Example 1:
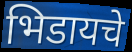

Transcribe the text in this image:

भिडायचे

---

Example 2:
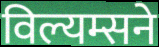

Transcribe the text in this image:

विल्यम्सने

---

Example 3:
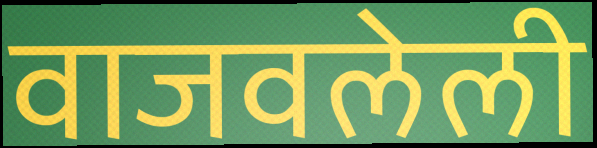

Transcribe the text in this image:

वाजवलेली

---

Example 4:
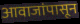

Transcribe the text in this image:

आवाजांपासून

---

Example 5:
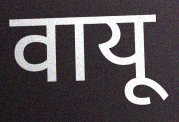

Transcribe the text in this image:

वायू